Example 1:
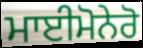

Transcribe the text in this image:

ਮਾਈਮੋਨੇਰੋ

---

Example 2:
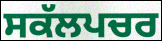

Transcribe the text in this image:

ਸਕੱਲਪਚਰ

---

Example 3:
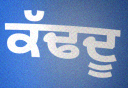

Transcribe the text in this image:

ਕੱਢਦੂ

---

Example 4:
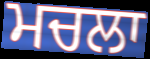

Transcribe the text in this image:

ਮਚਲਾ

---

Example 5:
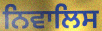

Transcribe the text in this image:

ਨਿਵਾਲਿਸ